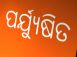
ପର୍ଯ୍ୟୁଷିତ